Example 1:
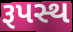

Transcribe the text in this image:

રૂપસ્થ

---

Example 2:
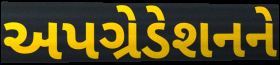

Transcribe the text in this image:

અપગ્રેડેશનને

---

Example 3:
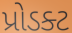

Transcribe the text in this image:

પ્રોડક્ટ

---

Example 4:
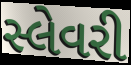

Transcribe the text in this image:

સ્લેવરી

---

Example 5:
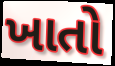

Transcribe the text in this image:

ખાતો